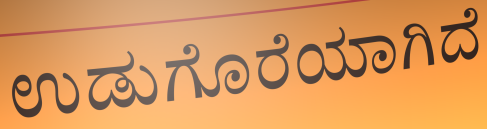
ಉಡುಗೊರೆಯಾಗಿದೆ